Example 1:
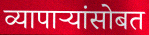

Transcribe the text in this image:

व्यापाऱ्यांसोबत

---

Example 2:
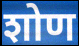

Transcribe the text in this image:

शोण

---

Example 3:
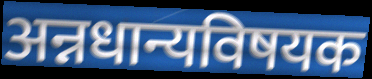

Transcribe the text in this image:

अन्नधान्यविषयक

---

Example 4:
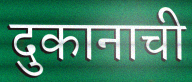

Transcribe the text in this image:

दुकानाची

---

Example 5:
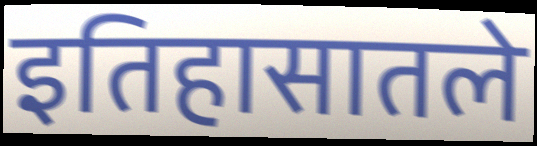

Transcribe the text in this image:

इतिहासातले